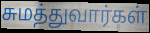
சுமத்துவார்கள்